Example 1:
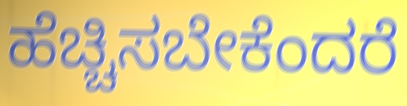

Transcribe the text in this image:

ಹೆಚ್ಚಿಸಬೇಕೆಂದರೆ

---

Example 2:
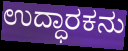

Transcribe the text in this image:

ಉದ್ಧಾರಕನು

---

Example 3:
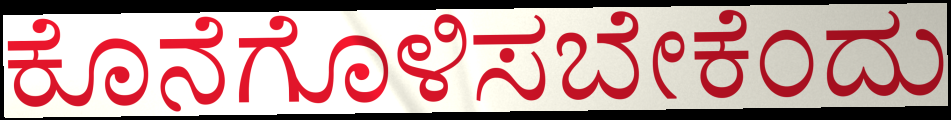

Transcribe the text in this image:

ಕೊನೆಗೊಳಿಸಬೇಕೆಂದು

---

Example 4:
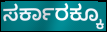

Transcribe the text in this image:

ಸರ್ಕಾರಕ್ಕೂ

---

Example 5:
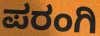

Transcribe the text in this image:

ಪರಂಗಿ